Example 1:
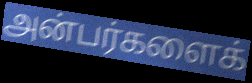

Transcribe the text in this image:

அன்பர்களைக்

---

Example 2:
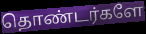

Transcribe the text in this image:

தொண்டர்களே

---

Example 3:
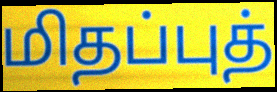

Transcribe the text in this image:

மிதப்புத்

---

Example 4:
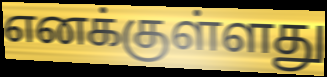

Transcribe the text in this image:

எனக்குள்ளது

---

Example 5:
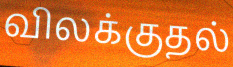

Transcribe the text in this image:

விலக்குதல்